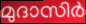
മുദാസിർ